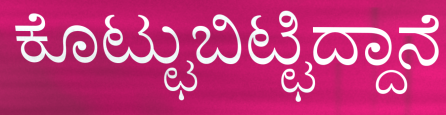
ಕೊಟ್ಟುಬಿಟ್ಟಿದ್ದಾನೆ